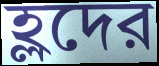
হ্লদের